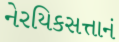
નેરયિકસત્તાનં